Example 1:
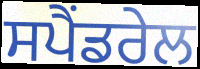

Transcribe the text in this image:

ਸਪੈਂਡਰੇਲ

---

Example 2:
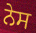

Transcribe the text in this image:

ਨੇਸ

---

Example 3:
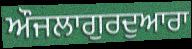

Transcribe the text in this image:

ਔਜਲਾਗੁਰਦੁਆਰਾ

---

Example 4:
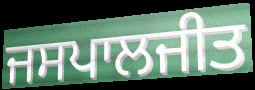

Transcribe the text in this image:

ਜਸਪਾਲਜੀਤ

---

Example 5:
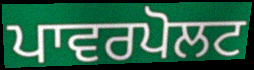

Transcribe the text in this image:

ਪਾਵਰਪੋਲਟ